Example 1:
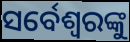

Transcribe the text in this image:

ସର୍ବେଶ୍ୱରଙ୍କୁ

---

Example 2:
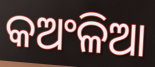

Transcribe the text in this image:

କଅଂଳିଆ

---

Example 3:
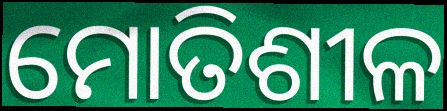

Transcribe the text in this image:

ମୋତିଶୀଳ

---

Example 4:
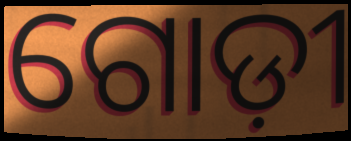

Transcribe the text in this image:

ଗୋଡ଼ୀ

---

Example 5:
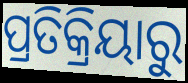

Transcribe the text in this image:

ପ୍ରତିକ୍ରିୟାରୁ